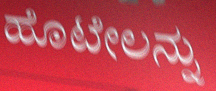
ಹೊಟೇಲನ್ನು